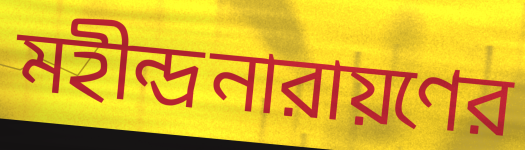
মহীন্দ্রনারায়ণের